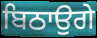
ਬਿਠਾਉਗੇ